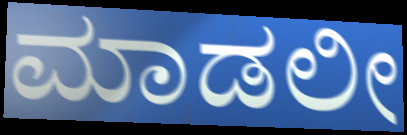
ಮಾಡಲೀ